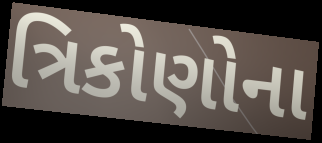
ત્રિકોણોના